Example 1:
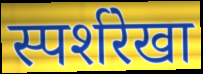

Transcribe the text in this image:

स्पर्शरेखा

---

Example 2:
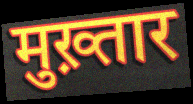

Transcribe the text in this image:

मुख़्तार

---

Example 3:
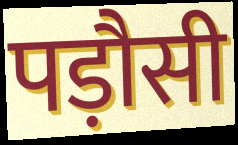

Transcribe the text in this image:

पड़ौसी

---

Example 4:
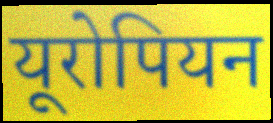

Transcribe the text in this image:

यूरोपियन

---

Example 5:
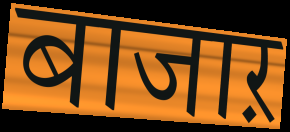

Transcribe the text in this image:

बाजाऱ